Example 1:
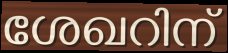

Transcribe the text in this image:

ശേഖറിന്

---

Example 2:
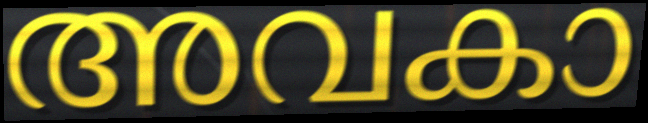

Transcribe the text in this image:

അവകാ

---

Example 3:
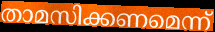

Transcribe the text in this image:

താമസിക്കണമെന്ന്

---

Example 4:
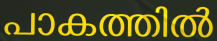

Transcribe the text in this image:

പാകത്തിൽ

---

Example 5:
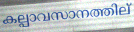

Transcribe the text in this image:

കല്പാവസാനത്തില്